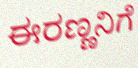
ಈರಣ್ಣನಿಗೆ